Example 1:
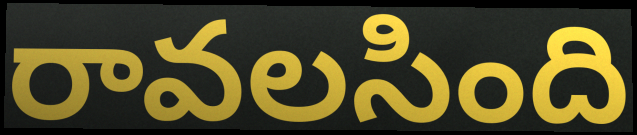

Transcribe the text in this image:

రావలసింది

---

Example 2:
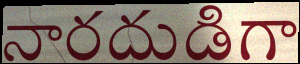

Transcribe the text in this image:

నారదుడిగా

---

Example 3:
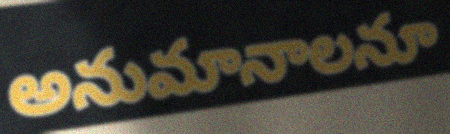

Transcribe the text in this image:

అనుమానాలనూ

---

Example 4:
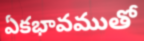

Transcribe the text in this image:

ఏకభావముతో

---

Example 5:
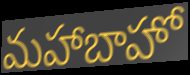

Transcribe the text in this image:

మహాబాహో